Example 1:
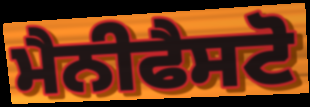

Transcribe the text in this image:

ਮੈਨੀਫੈਸਟੋ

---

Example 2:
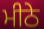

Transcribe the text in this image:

ਮੀਠੇ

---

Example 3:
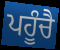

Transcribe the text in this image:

ਪਹੂੰਚੈ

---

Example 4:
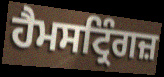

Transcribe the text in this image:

ਹੈਮਸਟ੍ਰਿੰਗਜ਼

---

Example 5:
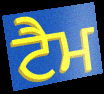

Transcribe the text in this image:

ਟੈਮ